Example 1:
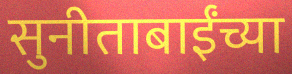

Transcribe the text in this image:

सुनीताबाईंच्या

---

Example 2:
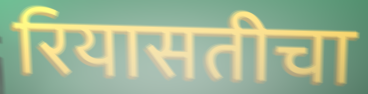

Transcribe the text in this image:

रियासतीचा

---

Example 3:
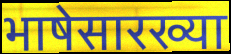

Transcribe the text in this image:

भाषेसारख्या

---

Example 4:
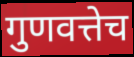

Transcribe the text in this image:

गुणवत्तेच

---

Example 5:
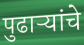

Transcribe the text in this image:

पुढाऱ्यांचे